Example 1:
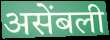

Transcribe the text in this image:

असेंबली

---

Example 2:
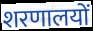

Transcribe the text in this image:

शरणालयों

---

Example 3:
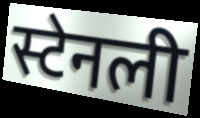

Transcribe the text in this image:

स्टेनली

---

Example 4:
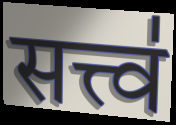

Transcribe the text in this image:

सत्त्व॑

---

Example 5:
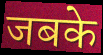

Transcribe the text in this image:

जबके